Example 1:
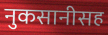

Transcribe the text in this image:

नुकसानीसह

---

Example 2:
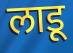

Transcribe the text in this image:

लाडू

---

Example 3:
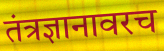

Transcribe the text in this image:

तंत्रज्ञानावरच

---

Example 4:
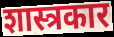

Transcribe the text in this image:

शास्त्रकार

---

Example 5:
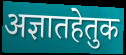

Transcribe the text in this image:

अज्ञातहेतुक